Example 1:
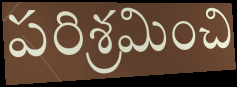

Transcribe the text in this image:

పరిశ్రమించి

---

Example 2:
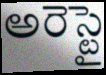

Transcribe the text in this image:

అరెస్టై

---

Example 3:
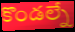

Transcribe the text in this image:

కొండల్నే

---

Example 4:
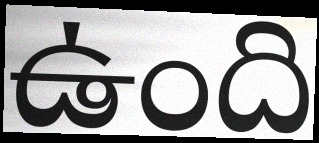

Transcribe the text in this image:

ఉంది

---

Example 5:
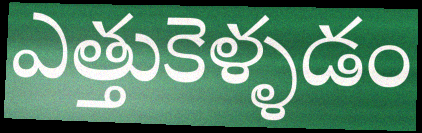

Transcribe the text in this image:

ఎత్తుకెళ్ళడం